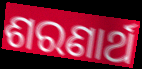
ଶରଣାର୍ଥ